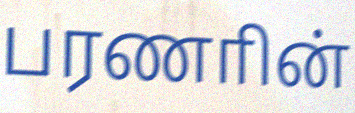
பரணரின்